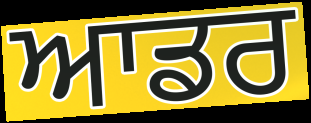
ਆਡਰ